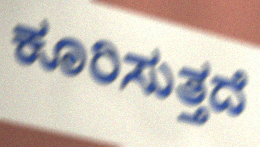
ಕೂರಿಸುತ್ತದೆ